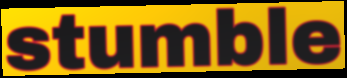
stumble